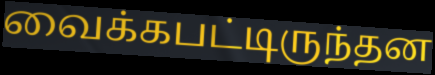
வைக்கபட்டிருந்தன